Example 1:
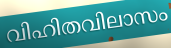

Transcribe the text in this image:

വിഹിതവിലാസം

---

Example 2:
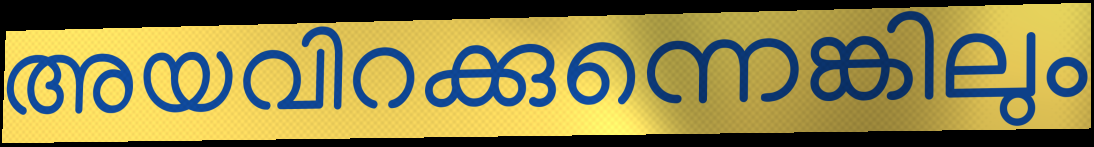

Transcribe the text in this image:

അയവിറക്കുന്നെങ്കിലും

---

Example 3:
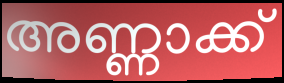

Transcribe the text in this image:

അണ്ണാക്ക്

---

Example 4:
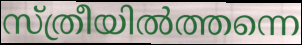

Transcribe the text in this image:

സ്ത്രീയിൽത്തന്നെ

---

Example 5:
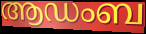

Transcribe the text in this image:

ആഡംബ